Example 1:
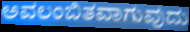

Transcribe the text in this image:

ಅವಲಂಬಿತವಾಗುವುದು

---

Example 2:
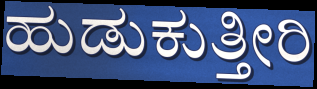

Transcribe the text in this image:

ಹುಡುಕುತ್ತೀರಿ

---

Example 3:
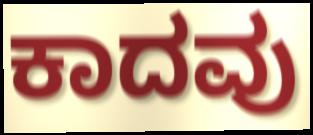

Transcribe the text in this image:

ಕಾದವು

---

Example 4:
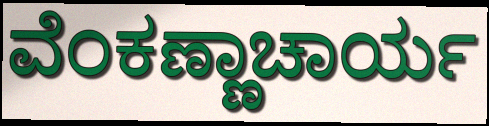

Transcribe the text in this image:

ವೆಂಕಣ್ಣಾಚಾರ್ಯ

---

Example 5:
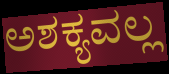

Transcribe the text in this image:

ಅಶಕ್ಯವಲ್ಲ